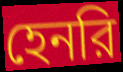
হেনরি